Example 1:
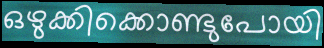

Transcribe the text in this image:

ഒഴുക്കിക്കൊണ്ടുപോയി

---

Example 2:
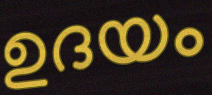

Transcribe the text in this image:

ഉദയം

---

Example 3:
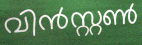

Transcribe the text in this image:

വിൻസ്റ്റൺ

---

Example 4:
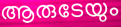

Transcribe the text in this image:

ആരുടേയും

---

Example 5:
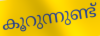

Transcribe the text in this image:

കൂറുന്നുണ്ട്